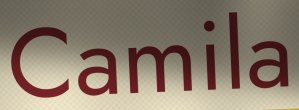
Camila